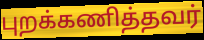
புறக்கணித்தவர்